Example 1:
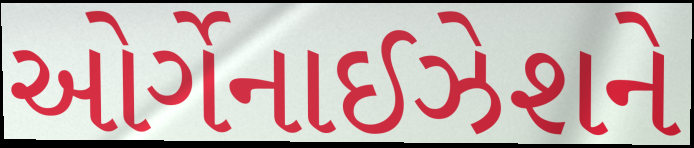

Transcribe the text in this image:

ઓર્ગેનાઈઝેશને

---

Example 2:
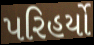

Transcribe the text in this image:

પરિહર્યો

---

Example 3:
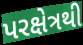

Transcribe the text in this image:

પરક્ષેત્રથી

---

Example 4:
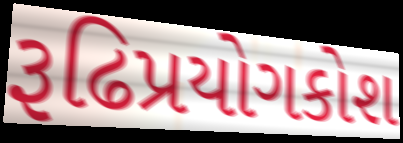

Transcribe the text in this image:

રૂઢિપ્રયોગકોશ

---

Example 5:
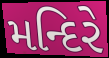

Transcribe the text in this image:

મન્દિરે